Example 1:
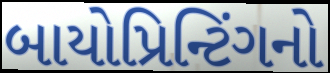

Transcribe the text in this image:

બાયોપ્રિન્ટિંગનો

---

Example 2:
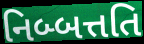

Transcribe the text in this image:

નિબ્બત્તતિ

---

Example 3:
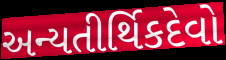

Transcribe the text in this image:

અન્યતીર્થિકદેવો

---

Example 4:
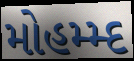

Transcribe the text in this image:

મોહમ્મ્દ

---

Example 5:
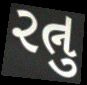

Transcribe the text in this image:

રત્નુ